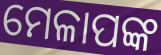
ମେଳାପଙ୍କ